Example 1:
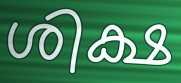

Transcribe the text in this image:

ശിക്ഷ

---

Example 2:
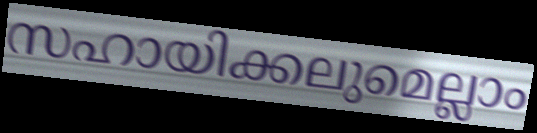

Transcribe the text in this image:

സഹായിക്കലുമെല്ലാം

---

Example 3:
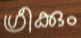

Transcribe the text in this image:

ഗ്രീക്കും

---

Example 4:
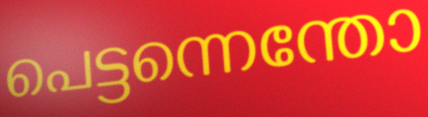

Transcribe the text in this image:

പെട്ടന്നെന്തോ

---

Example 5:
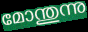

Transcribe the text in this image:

മോന്തുന്നു